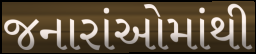
જનારાંઓમાંથી